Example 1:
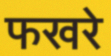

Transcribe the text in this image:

फखरे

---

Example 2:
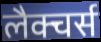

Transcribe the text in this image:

लैक्चर्स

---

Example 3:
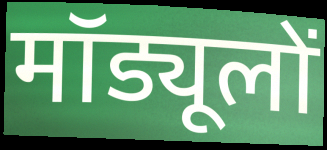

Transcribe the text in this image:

मॉड्यूलों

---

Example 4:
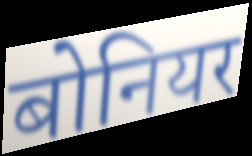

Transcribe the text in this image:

बोनियर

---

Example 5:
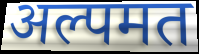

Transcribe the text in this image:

अल्पमत